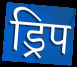
ड्रिप